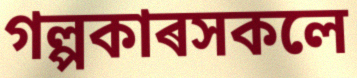
গল্পকাৰসকলে